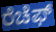
ರೆಚೆಫ್